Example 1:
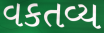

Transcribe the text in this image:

વકતવ્ય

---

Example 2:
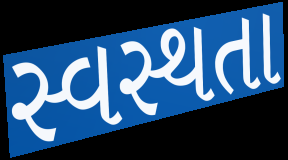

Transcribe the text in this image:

સ્વસ્થતા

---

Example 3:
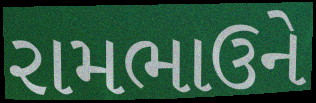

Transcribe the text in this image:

રામભાઉને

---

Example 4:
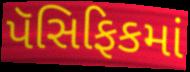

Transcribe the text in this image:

પૅસિફિકમાં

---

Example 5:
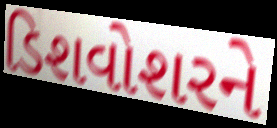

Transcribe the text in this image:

ડિશવોશરને